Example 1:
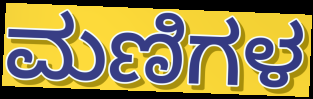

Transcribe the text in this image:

ಮಣಿಗಳ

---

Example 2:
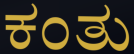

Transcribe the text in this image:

ಕಂತು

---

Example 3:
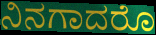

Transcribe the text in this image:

ನಿನಗಾದರೊ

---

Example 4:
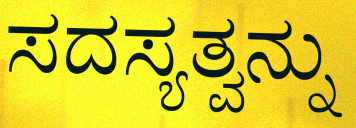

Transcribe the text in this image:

ಸದಸ್ಯತ್ವನ್ನು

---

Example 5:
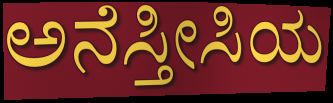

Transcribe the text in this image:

ಅನೆಸ್ತೀಸಿಯ